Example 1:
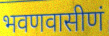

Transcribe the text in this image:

भवणवासीणं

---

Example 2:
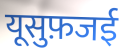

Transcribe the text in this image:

यूसुफ़जई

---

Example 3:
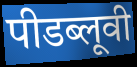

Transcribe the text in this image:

पीडब्लूवी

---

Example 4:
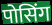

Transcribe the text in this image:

पोसिंग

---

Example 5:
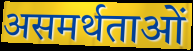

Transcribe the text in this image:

असमर्थताओं